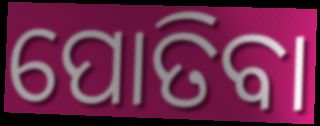
ପୋତିବା